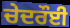
ਚੇਦਰੌਈ